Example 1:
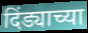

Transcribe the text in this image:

दिंड्याच्या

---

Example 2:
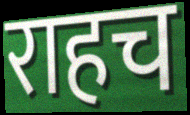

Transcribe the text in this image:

राहच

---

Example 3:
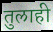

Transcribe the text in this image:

तुलाही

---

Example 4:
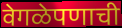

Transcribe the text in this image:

वेगळेपणाची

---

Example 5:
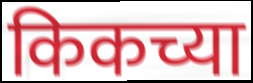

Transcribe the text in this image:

किकच्या